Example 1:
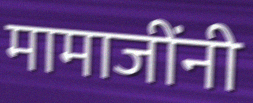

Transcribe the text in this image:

मामाजींनी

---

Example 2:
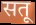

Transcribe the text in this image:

सतू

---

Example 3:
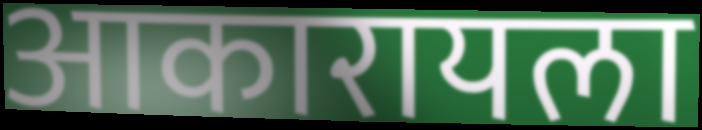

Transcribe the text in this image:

आकारायला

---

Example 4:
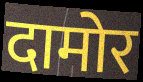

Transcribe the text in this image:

दामोर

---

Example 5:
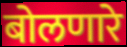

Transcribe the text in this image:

बोलणारे